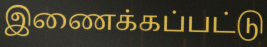
இணைக்கப்பட்டு